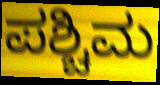
ಪಶ್ಚಿಮ